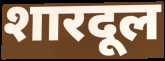
शारदूल